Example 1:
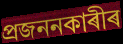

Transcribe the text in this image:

প্ৰজননকাৰীৰ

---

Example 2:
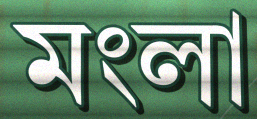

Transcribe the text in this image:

মংলা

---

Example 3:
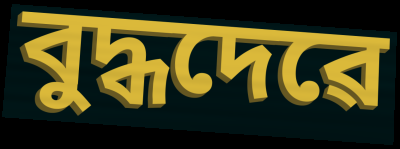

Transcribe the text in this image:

বুদ্ধদেৱে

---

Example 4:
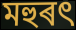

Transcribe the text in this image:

মহুৰৎ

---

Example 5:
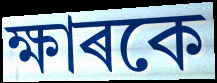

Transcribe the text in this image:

ক্ষাৰকে